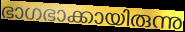
ഭാഗഭാക്കായിരുന്നു